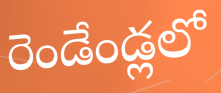
రెండేండ్లలో